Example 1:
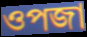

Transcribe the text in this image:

ওপজা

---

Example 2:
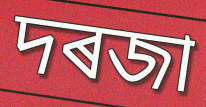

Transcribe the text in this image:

দৰজা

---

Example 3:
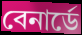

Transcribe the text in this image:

বেনাৰ্ডে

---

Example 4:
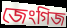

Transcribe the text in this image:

জেংগিজ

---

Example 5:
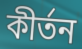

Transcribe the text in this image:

কীৰ্তন